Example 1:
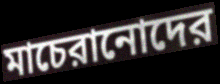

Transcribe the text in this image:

মাচেরানোদের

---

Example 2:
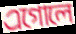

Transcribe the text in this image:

এগোলে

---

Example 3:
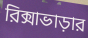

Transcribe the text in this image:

রিক্সাভাড়ার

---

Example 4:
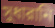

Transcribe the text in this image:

সুধারানি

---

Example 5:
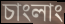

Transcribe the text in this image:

চাংলাং